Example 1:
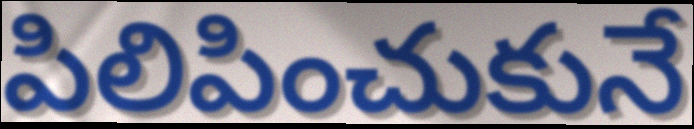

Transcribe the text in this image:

పిలిపించుకునే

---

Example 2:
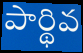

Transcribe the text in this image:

పార్థివ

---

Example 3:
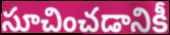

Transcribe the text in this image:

సూచించడానికీ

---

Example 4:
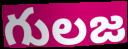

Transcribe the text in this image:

గులజ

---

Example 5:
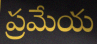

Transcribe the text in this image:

ప్రమేయ